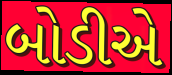
બોડીએ